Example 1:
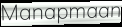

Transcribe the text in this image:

Manapmaan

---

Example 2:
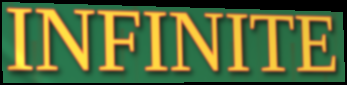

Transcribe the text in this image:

INFINITE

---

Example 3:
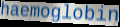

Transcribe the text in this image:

haemoglobin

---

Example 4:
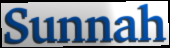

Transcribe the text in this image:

Sunnah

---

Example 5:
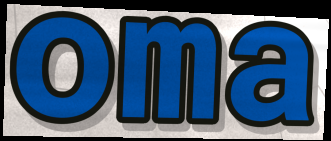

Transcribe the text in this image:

oma